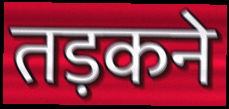
तड़कने